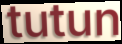
tutun